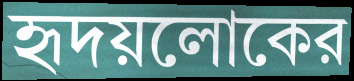
হৃদয়লোকের